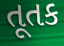
તૂતક